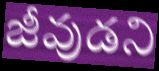
జీవుడని